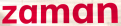
zaman